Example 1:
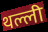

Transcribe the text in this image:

थल्ली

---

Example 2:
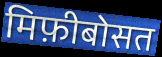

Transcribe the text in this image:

मिफ़ीबोसत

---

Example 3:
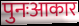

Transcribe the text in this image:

पुनःआकार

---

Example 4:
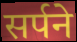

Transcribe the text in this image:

सर्पने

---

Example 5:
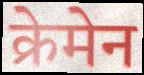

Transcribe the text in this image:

क्रेमेन